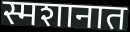
स्मशानात